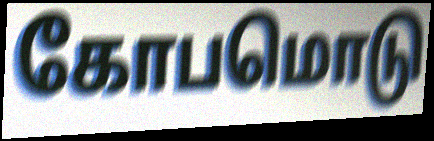
கோபமொடு